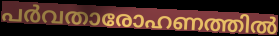
പർവതാരോഹണത്തിൽ